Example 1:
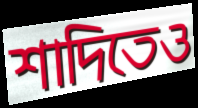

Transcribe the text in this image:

শাদিতেও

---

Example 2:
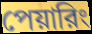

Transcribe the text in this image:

পেয়ারিং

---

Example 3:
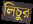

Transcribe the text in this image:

লিচুর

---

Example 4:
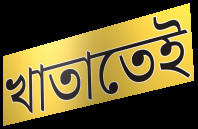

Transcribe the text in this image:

খাতাতেই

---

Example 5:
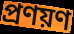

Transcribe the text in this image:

প্রণয়ণ